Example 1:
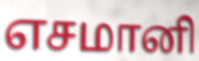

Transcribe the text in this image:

எசமானி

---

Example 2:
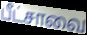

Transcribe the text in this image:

பீட்சாவை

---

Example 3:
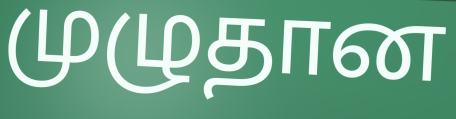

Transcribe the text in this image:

முழுதான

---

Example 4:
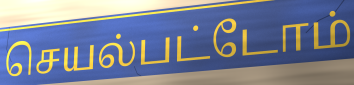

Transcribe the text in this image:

செயல்பட்டோம்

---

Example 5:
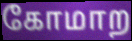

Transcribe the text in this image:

கோமாற